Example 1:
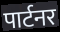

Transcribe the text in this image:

पार्टनर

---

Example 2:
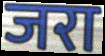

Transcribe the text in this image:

जरा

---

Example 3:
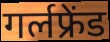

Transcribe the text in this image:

गर्लफ्रेंड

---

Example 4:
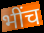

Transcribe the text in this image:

भींच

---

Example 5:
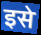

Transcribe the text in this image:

इसे